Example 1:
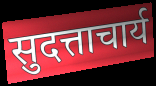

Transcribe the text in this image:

सुदत्ताचार्य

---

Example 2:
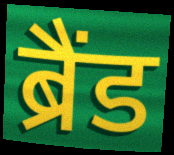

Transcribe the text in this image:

ब्रैंड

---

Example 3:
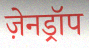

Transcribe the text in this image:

ज़ेनड्रॉप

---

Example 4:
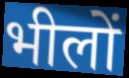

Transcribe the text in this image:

भीलों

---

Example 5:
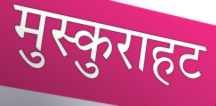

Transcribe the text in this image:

मुस्कुराहट